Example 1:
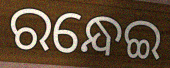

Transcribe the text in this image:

ରନ୍ଧେଇ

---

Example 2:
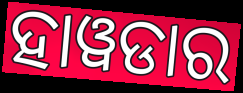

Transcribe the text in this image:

ହାୱଡାର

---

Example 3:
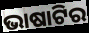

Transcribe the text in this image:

ଭାଷାଟିର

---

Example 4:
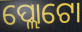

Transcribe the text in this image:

ପ୍ଲୋଟୋ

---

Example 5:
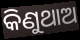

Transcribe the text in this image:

କିଣୁଥାଅ